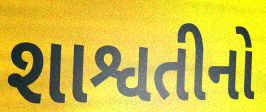
શાશ્વતીનો